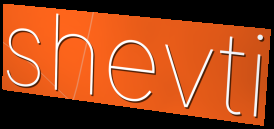
shevti